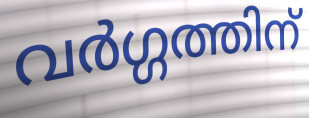
വർഗ്ഗത്തിന്